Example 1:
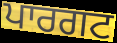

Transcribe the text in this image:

ਪਾਰਗਟ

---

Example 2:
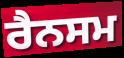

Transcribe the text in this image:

ਰੈਨਸਮ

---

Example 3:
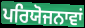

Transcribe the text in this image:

ਪਰਿਯੋਜਨਾਵਾਂ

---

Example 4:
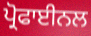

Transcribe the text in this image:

ਪ੍ਰੋਫਾਈਨਲ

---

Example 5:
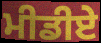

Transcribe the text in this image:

ਮੀਡੀਏ